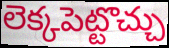
లెక్కపెట్టొచ్చు